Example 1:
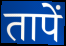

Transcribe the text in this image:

तापें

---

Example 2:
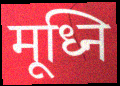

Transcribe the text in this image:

मूध्नि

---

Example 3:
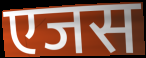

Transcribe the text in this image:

एजस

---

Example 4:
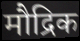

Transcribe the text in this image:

मौद्रिक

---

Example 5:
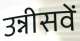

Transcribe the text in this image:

उन्नीसवें